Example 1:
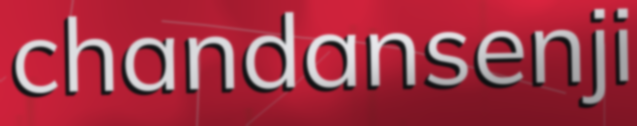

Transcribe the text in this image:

chandansenji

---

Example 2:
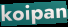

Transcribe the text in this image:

koipan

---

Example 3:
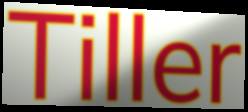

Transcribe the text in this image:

Tiller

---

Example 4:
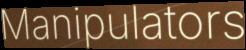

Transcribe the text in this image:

Manipulators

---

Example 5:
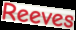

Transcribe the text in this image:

Reeves